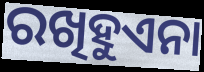
ରଖିହୁଏନା